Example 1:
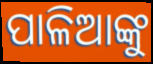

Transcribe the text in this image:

ପାଳିଆଙ୍କୁ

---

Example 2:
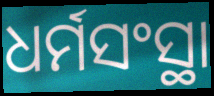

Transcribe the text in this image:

ଧର୍ମସଂସ୍ଥା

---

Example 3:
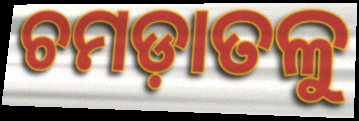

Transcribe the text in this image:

ଚମଡ଼ାତଳୁ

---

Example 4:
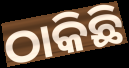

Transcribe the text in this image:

ଠାକିଛି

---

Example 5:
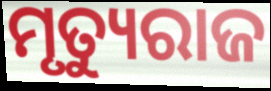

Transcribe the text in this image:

ମୃତ୍ୟୁରାଜ